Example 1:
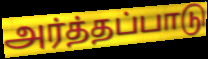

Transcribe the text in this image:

அர்த்தப்பாடு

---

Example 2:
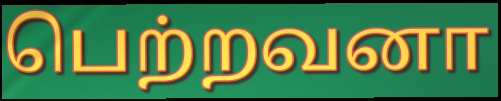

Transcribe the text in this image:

பெற்றவனா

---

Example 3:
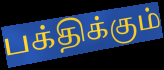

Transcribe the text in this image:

பக்திக்கும்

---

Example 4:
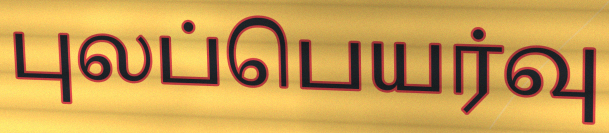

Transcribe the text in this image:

புலப்பெயர்வு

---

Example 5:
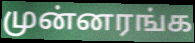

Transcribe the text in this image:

முன்னரங்க